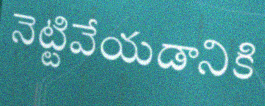
నెట్టివేయడానికి